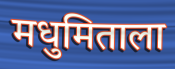
मधुमिताला